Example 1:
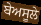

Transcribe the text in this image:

ਬੇਅਸੂਲੇ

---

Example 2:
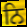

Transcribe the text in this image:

ਨਿ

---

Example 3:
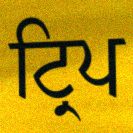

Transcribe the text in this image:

ਟ੍ਰਿਪ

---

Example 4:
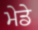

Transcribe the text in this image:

ਮੇਡੇ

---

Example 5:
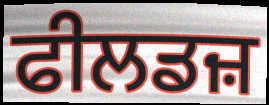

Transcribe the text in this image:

ਫੀਲਡਜ਼